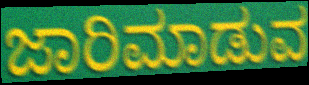
ಜಾರಿಮಾಡುವ